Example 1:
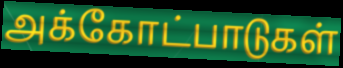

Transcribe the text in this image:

அக்கோட்பாடுகள்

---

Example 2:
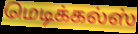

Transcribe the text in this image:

மெடிக்கல்ஸ்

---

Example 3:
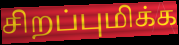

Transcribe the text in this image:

சிறப்புமிக்க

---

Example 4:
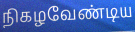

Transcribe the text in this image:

நிகழவேண்டிய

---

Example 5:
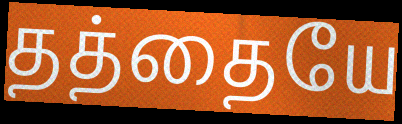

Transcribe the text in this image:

தத்தையே